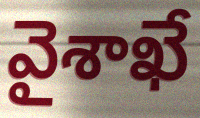
వైశాఖే